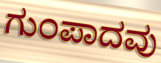
ಗುಂಪಾದವು